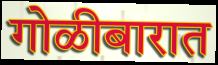
गोळीबारात